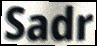
Sadr